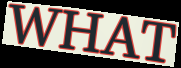
WHAT